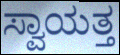
ಸ್ವಾಯತ್ತ